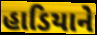
હાડિયાને